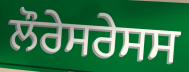
ਲੌਰੇਸਰੇਸਸ